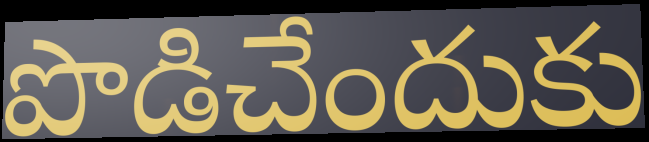
పొడిచేందుకు